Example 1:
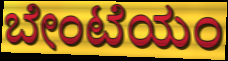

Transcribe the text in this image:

ಬೇಂಟೆಯಂ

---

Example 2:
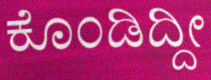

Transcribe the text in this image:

ಕೊಂಡಿದ್ದೀ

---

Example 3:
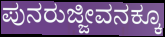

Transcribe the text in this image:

ಪುನರುಜ್ಜೀವನಕ್ಕೂ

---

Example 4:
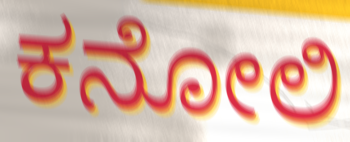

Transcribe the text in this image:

ಕನೋಲಿ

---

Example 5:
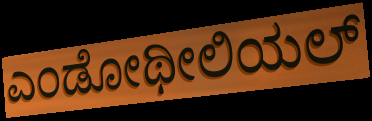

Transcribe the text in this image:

ಎಂಡೋಥೀಲಿಯಲ್